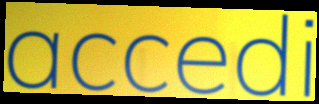
accedi